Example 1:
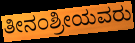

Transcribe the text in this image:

ತೀನಂಶ್ರೀಯವರು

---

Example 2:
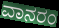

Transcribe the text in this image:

ವಾನರಂ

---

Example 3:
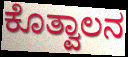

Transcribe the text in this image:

ಕೊತ್ವಾಲನ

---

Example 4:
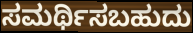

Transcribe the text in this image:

ಸಮರ್ಥಿಸಬಹುದು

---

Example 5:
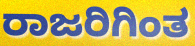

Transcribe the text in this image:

ರಾಜರಿಗಿಂತ